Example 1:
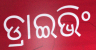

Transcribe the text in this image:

ଡ୍ରାଇଭିଂ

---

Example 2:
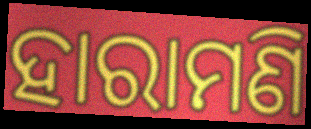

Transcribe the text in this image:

ହାରାମଣି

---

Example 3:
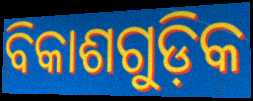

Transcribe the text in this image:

ବିକାଶଗୁଡ଼ିକ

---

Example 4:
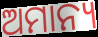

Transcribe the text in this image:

ଅମାନ୍ଯ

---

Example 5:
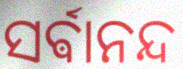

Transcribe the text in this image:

ସର୍ଵାନନ୍ଦ